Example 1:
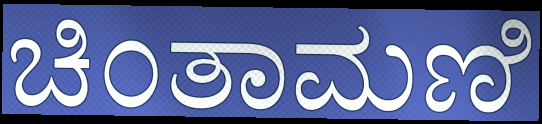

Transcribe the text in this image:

ಚಿಂತಾಮಣಿ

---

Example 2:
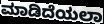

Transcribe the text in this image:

ಮಾಡಿದೆಯಲಾ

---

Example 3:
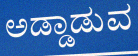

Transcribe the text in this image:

ಅಡ್ಡಾಡುವ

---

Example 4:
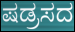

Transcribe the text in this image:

ಷಡ್ರಸದ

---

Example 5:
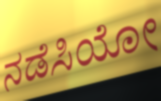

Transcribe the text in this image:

ನಡೆಸಿಯೋ